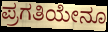
ಪ್ರಗತಿಯೇನೂ